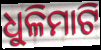
ଧୁଳିମାଟି